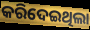
କରିଦେଇଥିଲା